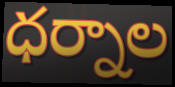
ధర్నాల